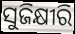
ସୁଜିକ୍ଷୀରି